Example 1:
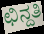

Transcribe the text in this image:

ಛಿನ್ದತಿ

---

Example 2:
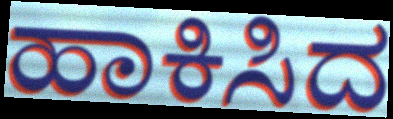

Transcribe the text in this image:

ಹಾಕಿಸಿದ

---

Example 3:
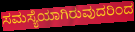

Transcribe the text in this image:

ಸಮಸ್ಯೆಯಾಗಿರುವುದರಿಂದ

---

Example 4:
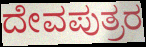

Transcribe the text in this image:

ದೇವಪುತ್ರರ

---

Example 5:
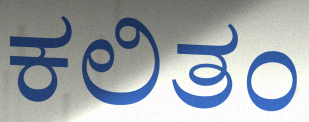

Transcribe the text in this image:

ಕಲಿತಂ